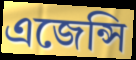
এজেন্সি